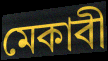
মেকাবী